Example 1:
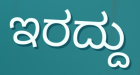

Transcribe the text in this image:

ಇರದ್ದು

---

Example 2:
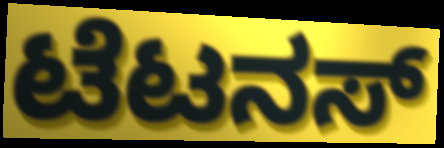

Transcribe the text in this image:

ಟೆಟನಸ್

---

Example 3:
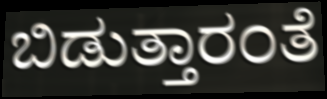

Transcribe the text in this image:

ಬಿಡುತ್ತಾರಂತೆ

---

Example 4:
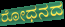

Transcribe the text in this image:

ರೋಧನದ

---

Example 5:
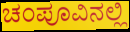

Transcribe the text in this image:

ಚಂಪೂವಿನಲ್ಲಿ